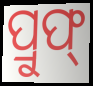
ପ୍ରୁଫ୍